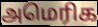
அமெரிக